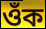
ওঁক